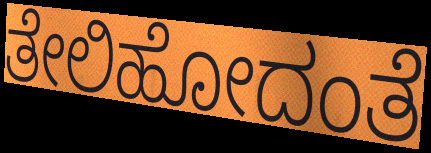
ತೇಲಿಹೋದಂತೆ